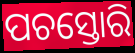
ପଚସ୍ତୋରି